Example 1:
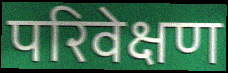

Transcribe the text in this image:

परिवेक्षण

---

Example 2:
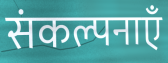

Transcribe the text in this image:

संकल्पनाएँ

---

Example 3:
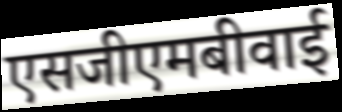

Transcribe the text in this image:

एसजीएमबीवाई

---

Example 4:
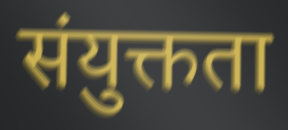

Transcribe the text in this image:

संयुक्तता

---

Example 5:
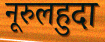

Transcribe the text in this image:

नूरुलहुदा